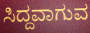
ಸಿದ್ದವಾಗುವ